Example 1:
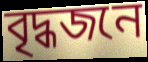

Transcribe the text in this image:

বৃদ্ধজনে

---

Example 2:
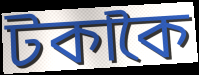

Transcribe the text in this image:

টকাকৈ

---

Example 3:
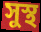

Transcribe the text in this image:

সুস্থ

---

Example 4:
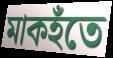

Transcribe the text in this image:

মাকহঁতে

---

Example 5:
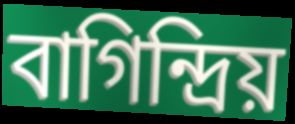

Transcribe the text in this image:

বাগিন্দ্ৰিয়